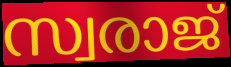
സ്വരാജ്